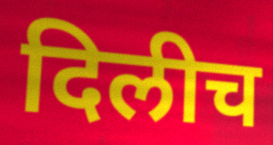
दिलीच